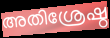
അതിശ്രേഷ്ഠ